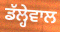
ਡੱਲ੍ਹੇਵਾਲ